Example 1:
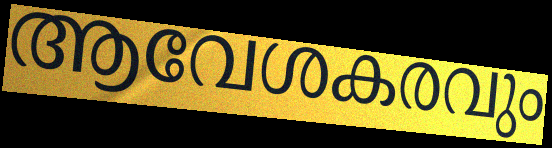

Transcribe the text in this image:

ആവേശകരവും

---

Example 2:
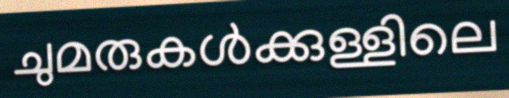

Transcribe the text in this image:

ചുമരുകൾക്കുള്ളിലെ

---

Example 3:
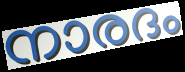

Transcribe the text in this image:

നാരദം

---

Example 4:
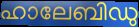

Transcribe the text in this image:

ഹാലേബിഡു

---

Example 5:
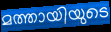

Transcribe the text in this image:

മത്തായിയുടെ